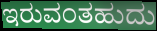
ಇರುವಂತಹುದು